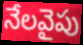
నేలవైపు